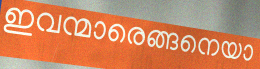
ഇവന്മാരെങ്ങനെയാ